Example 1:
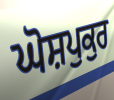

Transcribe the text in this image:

ਘੋਸ਼ਪੁਕੁਰ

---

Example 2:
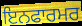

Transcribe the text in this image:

ਇਨਫਾਰਮਰ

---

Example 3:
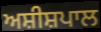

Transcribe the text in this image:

ਅਸ਼ੀਸ਼ਪਾਲ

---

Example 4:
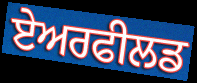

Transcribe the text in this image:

ਏਅਰਫੀਲਡ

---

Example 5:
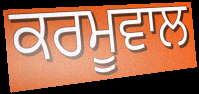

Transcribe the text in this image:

ਕਰਮੂਵਾਲ